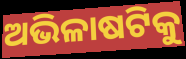
ଅଭିଳାଷଟିକୁ